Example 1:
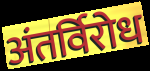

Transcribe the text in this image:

अंतर्विरोध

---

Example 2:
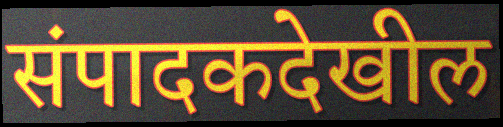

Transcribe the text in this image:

संपादकदेखील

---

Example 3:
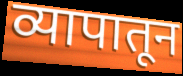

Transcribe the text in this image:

व्यापातून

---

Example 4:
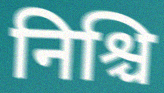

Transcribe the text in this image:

निश्चि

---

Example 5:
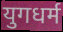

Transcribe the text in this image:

युगधर्म